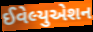
ઈવેલ્યુએશન